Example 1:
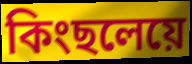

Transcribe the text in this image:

কিংছলেয়ে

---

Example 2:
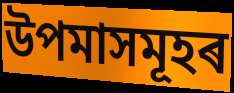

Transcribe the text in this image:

উপমাসমূহৰ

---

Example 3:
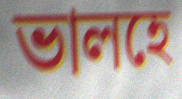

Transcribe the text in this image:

ভালহে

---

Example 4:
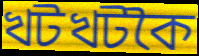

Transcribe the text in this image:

খটখটকৈ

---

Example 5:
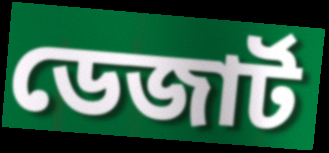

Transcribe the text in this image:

ডেজাৰ্ট